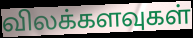
விலக்களவுகள்